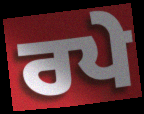
ਰਪੇ